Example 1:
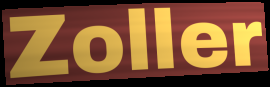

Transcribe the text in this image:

Zoller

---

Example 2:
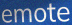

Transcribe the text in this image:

emote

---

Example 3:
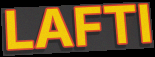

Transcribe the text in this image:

LAFTI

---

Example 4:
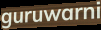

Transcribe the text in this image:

guruwarni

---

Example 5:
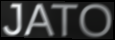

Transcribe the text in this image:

JATO